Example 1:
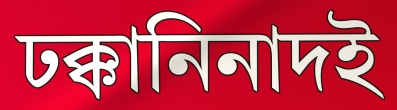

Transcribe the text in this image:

ঢক্কানিনাদই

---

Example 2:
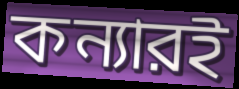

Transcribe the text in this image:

কন্যারই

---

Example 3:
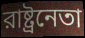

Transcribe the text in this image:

রাষ্ট্রনেতা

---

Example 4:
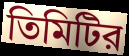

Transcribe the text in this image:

তিমিটির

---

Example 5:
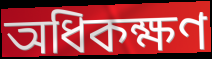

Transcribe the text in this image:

অধিকক্ষণ